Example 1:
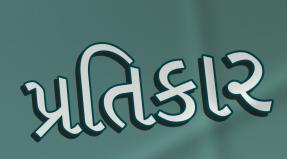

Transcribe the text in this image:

પ્રતિકાર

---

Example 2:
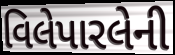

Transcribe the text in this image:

વિલેપારલેની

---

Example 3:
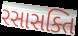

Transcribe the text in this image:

રસાસક્તિ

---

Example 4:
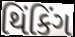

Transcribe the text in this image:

થિંકિંગ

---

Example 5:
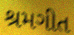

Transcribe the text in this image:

શ્રમગીત